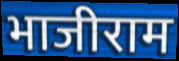
भाजीराम